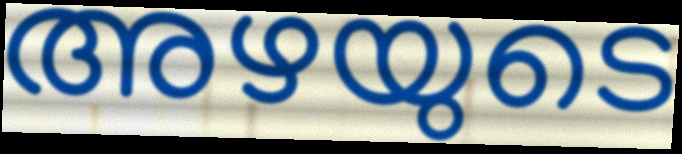
അഴയുടെ